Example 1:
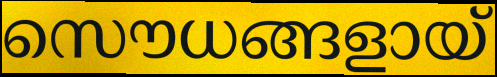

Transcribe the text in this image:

സൌധങ്ങളായ്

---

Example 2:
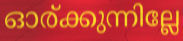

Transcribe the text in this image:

ഓര്ക്കുന്നില്ലേ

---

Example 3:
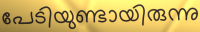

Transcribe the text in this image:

പേടിയുണ്ടായിരുന്നു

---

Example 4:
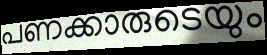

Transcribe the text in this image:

പണക്കാരുടെയും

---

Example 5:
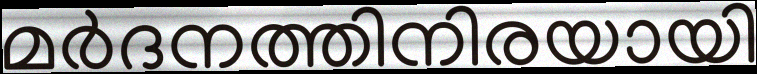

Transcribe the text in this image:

മർദനത്തിനിരയായി